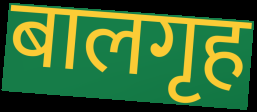
बालगृह